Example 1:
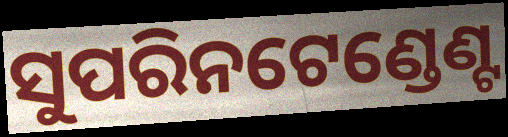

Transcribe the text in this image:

ସୁପରିନଟେଣ୍ଡେଣ୍ଟ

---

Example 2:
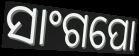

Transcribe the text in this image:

ସାଂଗପୋ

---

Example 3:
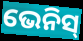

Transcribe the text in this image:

ଭେନିସ୍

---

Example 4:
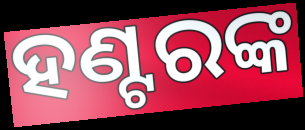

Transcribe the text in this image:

ହଣ୍ଟରଙ୍କ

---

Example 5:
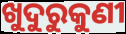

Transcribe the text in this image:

ଖୁଦୁରୁକୁଣୀ